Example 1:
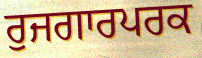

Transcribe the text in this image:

ਰੁਜਗਾਰਪਰਕ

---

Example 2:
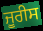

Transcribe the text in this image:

ਜੂਰੀਸ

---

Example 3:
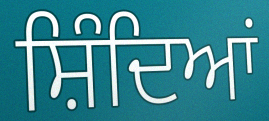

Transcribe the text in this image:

ਸ਼ਿੰਦਿਆਂ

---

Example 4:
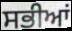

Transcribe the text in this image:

ਸਭੀਆਂ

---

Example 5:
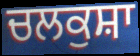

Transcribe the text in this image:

ਚਲਕੁਸ਼ਾ